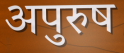
अपुरुष